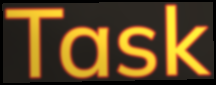
Task